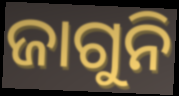
ଜାଗୁନି